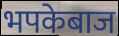
भपकेबाज